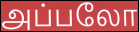
அப்பலோ